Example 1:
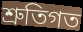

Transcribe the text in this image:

শ্রুতিগত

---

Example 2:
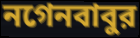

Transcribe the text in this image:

নগেনবাবুর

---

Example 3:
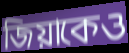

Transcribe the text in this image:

জিয়াকেও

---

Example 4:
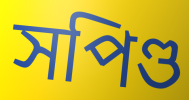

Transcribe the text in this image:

সপিণ্ড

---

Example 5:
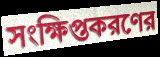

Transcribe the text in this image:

সংক্ষিপ্তকরণের